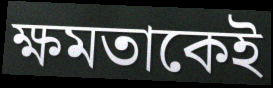
ক্ষমতাকেই